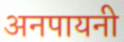
अनपायनी